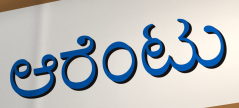
ಆರೆಂಟು